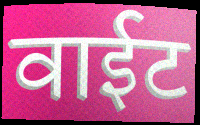
वाईट